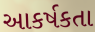
આકર્ષકતા